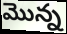
మొన్న